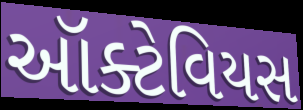
ઑક્ટેવિયસ